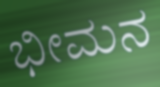
ಭೀಮನ